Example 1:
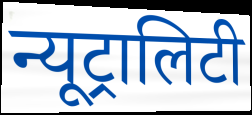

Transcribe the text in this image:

न्यूट्रालिटी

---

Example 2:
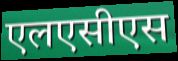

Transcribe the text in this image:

एलएसीएस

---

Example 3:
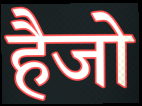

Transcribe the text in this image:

हैजो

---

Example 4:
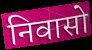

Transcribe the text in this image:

निवासो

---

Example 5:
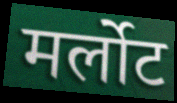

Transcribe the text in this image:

मर्लोट